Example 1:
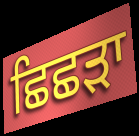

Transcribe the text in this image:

ਛਿਛੜਾ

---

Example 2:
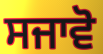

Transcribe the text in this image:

ਸਜਾਵੋ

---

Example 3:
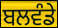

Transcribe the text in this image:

ਬਲਵੰਡੇ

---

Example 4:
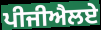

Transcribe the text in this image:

ਪੀਜੀਐਲਏ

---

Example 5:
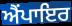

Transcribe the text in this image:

ਐਂਪਾਇਰ